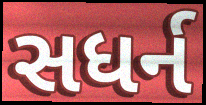
સધર્ન